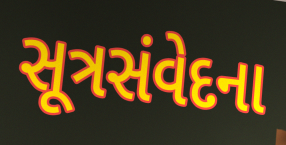
સૂત્રસંવેદના